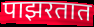
पाझरतात